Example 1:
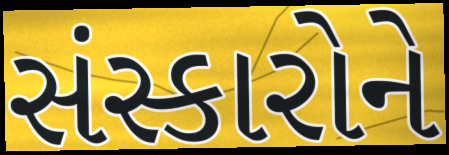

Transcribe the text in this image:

સંસ્કારોને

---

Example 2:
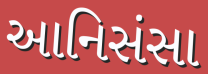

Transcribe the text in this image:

આનિસંસા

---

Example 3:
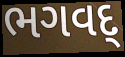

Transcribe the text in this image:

ભગવદ્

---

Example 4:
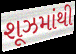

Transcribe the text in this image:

શૂઝમાંથી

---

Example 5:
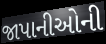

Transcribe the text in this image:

જાપાનીઓની